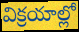
విక్రయాల్లో